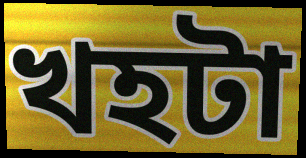
খহটা